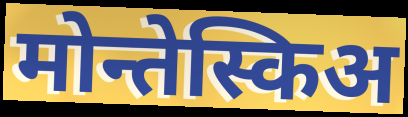
मोन्तेस्किअ